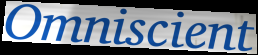
Omniscient